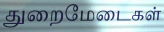
துறைமேடைகள்